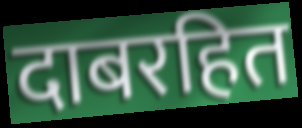
दाबरहित